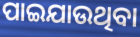
ପାଇଯାଉଥିବା